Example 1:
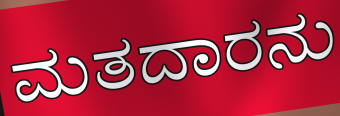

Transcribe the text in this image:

ಮತದಾರನು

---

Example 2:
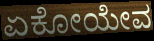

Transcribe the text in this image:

ಏಕೋಯೇವ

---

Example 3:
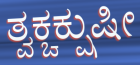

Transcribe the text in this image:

ತ್ವಕ್ಚಕ್ಷುಷೀ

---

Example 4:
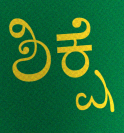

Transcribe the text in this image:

ಶಿಕ್ಷೆ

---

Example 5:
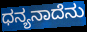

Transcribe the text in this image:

ಧನ್ಯನಾದೆನು